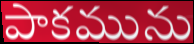
పాకమును